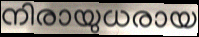
നിരായുധരായ